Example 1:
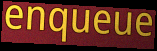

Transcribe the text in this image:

enqueue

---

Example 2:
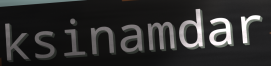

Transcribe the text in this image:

ksinamdar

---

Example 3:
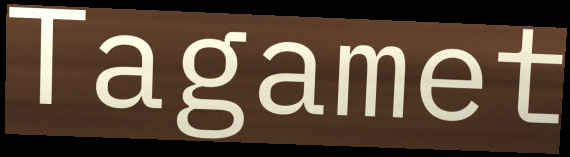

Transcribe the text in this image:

Tagamet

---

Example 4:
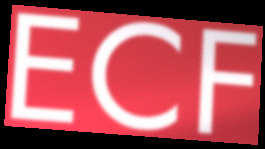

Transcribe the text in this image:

ECF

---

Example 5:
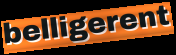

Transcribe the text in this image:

belligerent